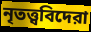
নৃতত্ত্ববিদেরা